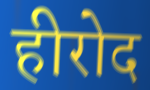
हीरोद